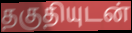
தகுதியுடன்